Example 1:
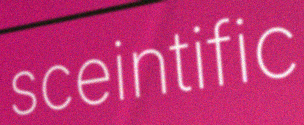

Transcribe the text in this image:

sceintific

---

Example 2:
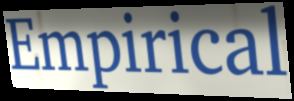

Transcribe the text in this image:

Empirical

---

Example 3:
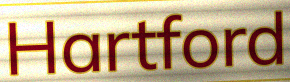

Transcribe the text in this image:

Hartford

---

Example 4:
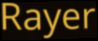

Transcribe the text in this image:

Rayer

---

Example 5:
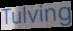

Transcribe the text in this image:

Tulving